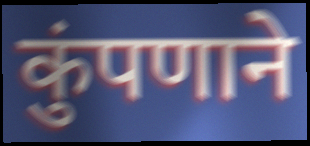
कुंपणाने